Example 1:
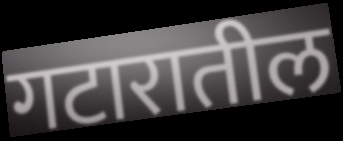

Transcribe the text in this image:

गटारातील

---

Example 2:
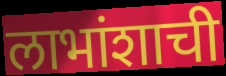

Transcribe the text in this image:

लाभांशाची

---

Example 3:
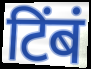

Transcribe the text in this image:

टिंबं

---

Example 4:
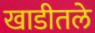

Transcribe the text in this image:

खाडीतले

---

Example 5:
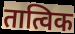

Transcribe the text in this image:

तात्विक